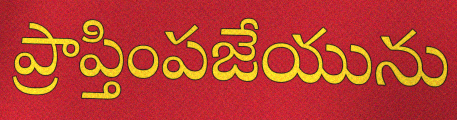
ప్రాప్తింపజేయును